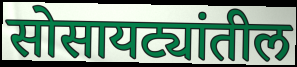
सोसायट्यांतील